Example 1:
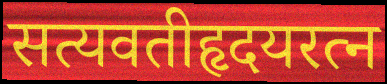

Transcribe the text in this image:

सत्यवतीहृदयरत्न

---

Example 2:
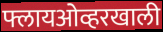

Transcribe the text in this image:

फ्लायओव्हरखाली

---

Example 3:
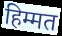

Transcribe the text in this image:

हिम्मत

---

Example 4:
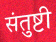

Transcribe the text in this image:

संतुष्टी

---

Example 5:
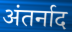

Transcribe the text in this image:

अंतर्नाद